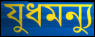
যুধমন্যু